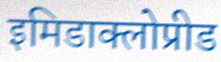
इमिडाक्लोप्रीड